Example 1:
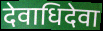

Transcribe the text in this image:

देवाधिदेवा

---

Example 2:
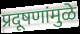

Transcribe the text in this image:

प्रदूषणांमुळे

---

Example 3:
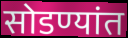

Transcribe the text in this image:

सोडण्यांत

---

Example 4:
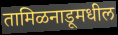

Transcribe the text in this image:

तामिळनाडूमधील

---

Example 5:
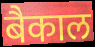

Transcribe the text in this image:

बैकाल